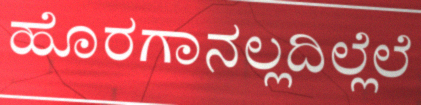
ಹೊರಗಾನಲ್ಲದಿಲ್ಲೆಲೆ